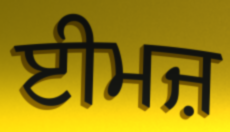
ਈਮਜ਼